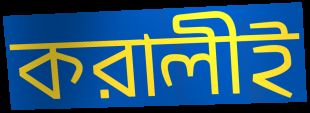
করালীই